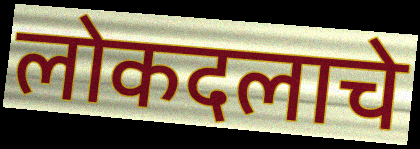
लोकदलाचे